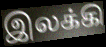
இலக்கி